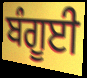
ਬੰਗੂਈ